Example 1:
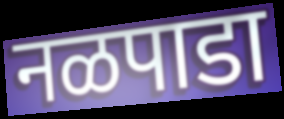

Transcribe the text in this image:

नळपाडा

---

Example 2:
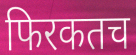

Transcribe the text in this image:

फिरकतच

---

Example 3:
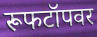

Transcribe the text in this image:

रूफटॉपवर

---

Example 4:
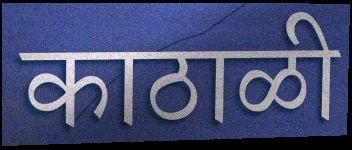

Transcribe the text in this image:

काठाळी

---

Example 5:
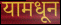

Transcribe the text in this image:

यामधून